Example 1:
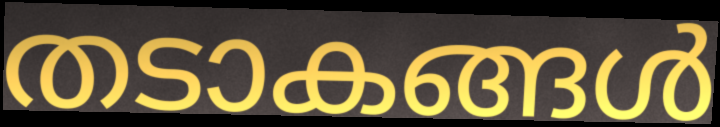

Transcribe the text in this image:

തടാകങ്ങൾ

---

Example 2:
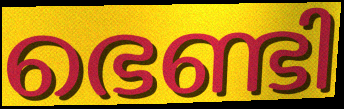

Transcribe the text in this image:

ഭെണ്ടി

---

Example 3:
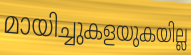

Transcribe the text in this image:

മായിച്ചുകളയുകയില്ല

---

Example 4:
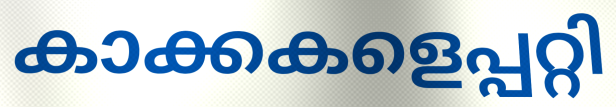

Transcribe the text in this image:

കാക്കകളെപ്പറ്റി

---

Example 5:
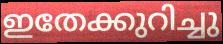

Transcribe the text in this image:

ഇതേക്കുറിച്ചു